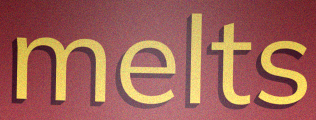
melts